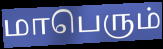
மாபெரும்